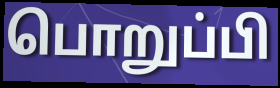
பொறுப்பி